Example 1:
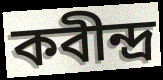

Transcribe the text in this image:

কবীন্দ্র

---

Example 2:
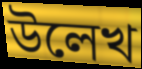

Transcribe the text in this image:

উলেখ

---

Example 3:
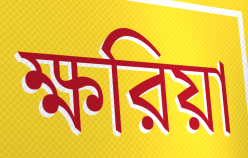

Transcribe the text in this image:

ক্ষরিয়া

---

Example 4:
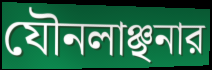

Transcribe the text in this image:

যৌনলাঞ্ছনার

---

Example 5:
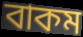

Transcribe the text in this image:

বাকম